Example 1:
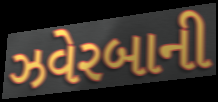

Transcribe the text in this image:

ઝવેરબાની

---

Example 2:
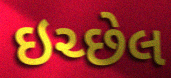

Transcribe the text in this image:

ઇચ્છેલ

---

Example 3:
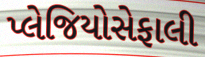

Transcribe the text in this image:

પ્લેજિયોસેફાલી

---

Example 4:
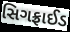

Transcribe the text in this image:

સિગફ્રાઈડ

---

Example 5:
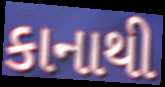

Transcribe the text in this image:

કાનાથી